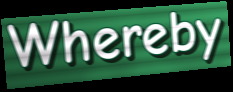
Whereby